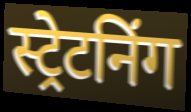
स्ट्रेटनिंग